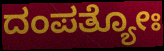
ದಂಪತ್ಯೋಃ